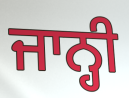
ਜਾਨ੍ਹੀ